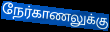
நேர்காணலுக்கு